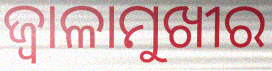
ଜ୍ୱାଳାମୁଖୀର